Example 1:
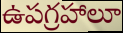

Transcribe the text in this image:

ఉపగ్రహాలూ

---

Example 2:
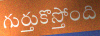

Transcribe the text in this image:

గుర్తుకొస్తోంది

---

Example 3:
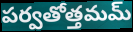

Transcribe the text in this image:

పర్వతోత్తమమ్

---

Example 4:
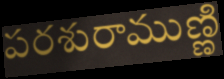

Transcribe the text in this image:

పరశురాముణ్ణి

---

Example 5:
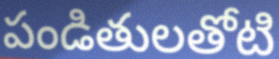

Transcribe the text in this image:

పండితులతోటి